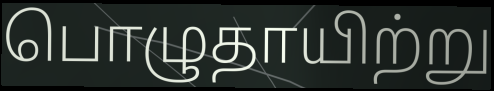
பொழுதாயிற்று